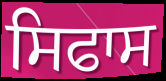
ਸਿਫਾਸ